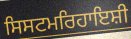
ਸਿਸਟਮਰਿਹਾਇਸ਼ੀ